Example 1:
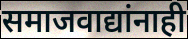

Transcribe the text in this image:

समाजवाद्यांनाही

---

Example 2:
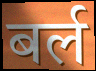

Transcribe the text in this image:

बर्ल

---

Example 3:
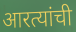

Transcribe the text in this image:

आरत्यांची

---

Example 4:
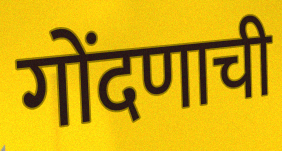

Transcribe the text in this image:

गोंदणाची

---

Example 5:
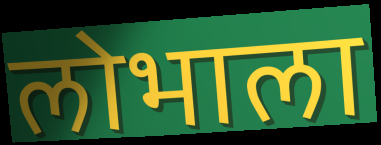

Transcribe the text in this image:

लोभाला